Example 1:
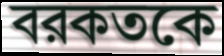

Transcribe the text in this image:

বরকতকে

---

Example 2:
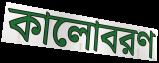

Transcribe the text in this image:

কালোবরণ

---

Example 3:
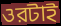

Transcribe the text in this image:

ওরটাই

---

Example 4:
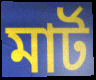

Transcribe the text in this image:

মার্ট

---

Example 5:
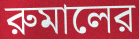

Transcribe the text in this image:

রুমালের